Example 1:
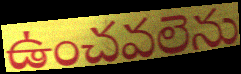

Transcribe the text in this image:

ఉంచవలెను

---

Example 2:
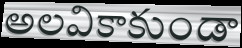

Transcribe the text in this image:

అలవికాకుండా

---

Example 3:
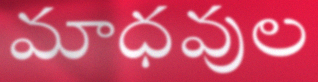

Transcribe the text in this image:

మాధవుల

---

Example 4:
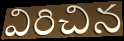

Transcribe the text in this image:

విరిచిన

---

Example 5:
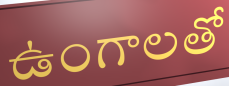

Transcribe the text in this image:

ఉంగాలతో